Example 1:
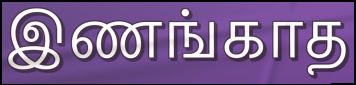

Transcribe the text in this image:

இணங்காத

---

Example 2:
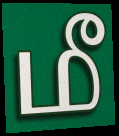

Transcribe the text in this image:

மீ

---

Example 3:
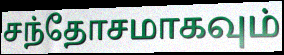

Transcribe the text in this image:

சந்தோசமாகவும்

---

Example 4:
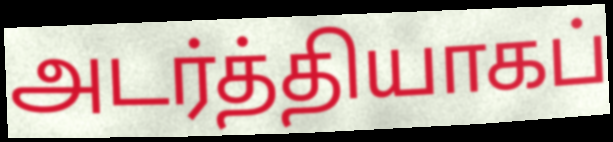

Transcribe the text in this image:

அடர்த்தியாகப்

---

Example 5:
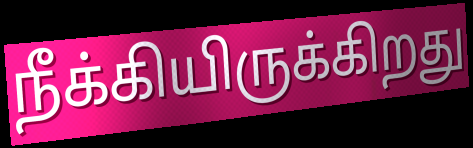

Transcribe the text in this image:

நீக்கியிருக்கிறது